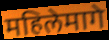
महिलेमागे